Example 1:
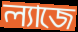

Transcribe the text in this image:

ল্যাজে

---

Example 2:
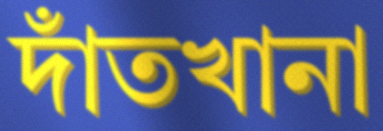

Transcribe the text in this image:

দাঁতখানা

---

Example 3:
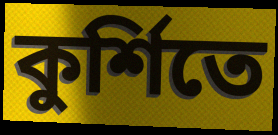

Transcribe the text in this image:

কুর্শিতে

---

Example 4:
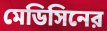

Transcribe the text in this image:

মেডিসিনের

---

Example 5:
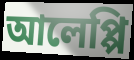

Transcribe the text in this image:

আলেপ্পি